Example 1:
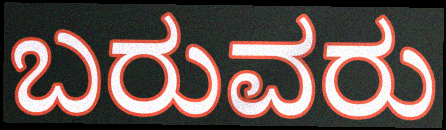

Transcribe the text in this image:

ಬರುವರು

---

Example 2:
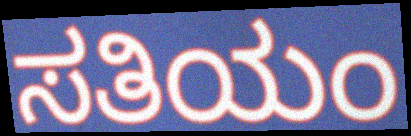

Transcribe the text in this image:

ಸತಿಯಂ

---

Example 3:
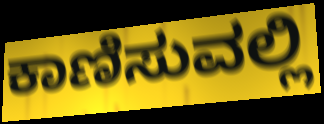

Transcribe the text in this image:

ಕಾಣಿಸುವಲ್ಲಿ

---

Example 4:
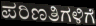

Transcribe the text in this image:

ಪರಿಣತಿಗಳಿಗೆ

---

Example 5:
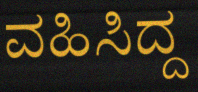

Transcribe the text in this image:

ವಹಿಸಿದ್ದ